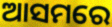
ଆସମରେ